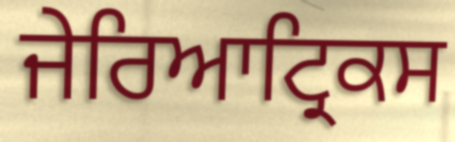
ਜੇਰਿਆਟ੍ਰਿਕਸ